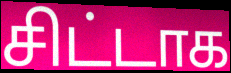
சிட்டாக